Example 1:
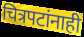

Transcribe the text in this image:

चित्रपटांनाही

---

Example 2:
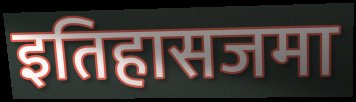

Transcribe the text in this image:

इतिहासजमा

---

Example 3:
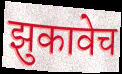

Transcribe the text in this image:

झुकावेच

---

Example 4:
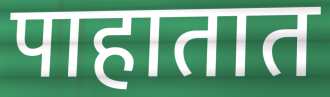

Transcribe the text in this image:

पाहातात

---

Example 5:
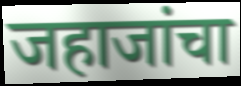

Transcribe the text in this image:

जहाजांचा